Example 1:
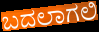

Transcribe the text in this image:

ಬದಲಾಗಲಿ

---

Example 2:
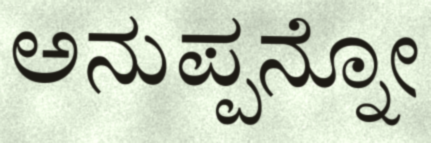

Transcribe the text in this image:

ಅನುಪ್ಪನ್ನೋ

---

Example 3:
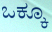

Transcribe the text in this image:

ಒಕ್ಕೂ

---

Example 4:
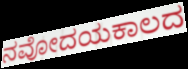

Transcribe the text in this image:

ನವೋದಯಕಾಲದ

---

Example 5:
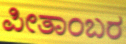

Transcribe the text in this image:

ಪೀತಾಂಬರ